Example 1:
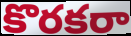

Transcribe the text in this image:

కొరకరా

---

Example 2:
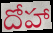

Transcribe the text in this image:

దోహా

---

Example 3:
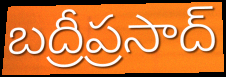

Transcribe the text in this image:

బద్రీప్రసాద్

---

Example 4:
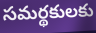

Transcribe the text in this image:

సమర్థకులకు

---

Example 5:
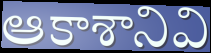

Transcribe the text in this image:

ఆకాశానివి